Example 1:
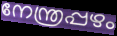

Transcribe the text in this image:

നേന്ത്രപ്പഴം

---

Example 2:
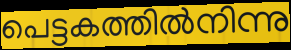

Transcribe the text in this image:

പെട്ടകത്തിൽനിന്നു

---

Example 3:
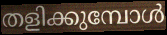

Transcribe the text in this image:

തളിക്കുമ്പോൾ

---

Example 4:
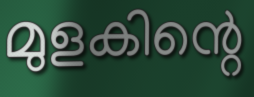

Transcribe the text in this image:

മുളകിന്റെ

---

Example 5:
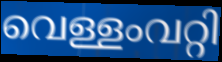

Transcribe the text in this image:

വെള്ളംവറ്റി